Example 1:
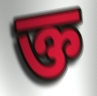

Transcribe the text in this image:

ক্ত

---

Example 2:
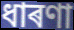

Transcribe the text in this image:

ধাৰণা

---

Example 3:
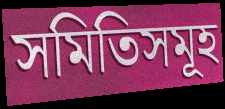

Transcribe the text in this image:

সমিতিসমূহ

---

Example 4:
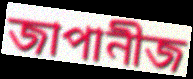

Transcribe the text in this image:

জাপানীজ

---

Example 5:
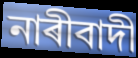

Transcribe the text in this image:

নাৰীবাদী